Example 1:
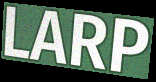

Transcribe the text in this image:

LARP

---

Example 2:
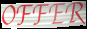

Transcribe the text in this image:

OFFER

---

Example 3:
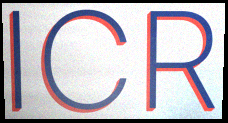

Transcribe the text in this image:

ICR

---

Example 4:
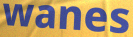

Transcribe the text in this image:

wanes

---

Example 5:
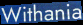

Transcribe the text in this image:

Withania